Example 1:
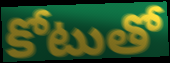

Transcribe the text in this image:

కోటుతో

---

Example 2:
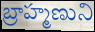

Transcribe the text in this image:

బ్రాహ్మణుని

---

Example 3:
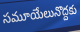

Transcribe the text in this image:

సమూయేలునొద్దకు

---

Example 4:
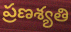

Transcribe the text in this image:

ప్రణశ్యతి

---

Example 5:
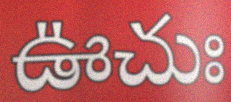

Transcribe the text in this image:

ఊచుః